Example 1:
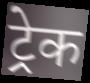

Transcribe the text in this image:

ट्रेक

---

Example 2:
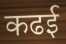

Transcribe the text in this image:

कढई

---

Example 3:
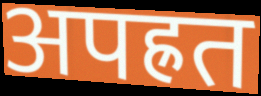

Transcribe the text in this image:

अपह्रत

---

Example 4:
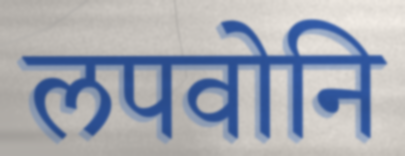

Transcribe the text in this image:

लपवोनि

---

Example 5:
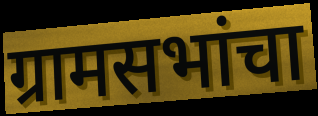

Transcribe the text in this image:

ग्रामसभांचा